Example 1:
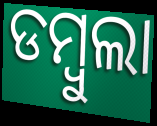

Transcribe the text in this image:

ଡମ୍ୱୁଲା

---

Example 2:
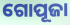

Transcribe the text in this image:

ଗୋପୂଜା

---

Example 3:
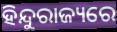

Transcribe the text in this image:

ହିନ୍ଦୁରାଜ୍ୟରେ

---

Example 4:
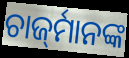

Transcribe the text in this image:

ଚାର୍ଜ୍‍ମାନଙ୍କ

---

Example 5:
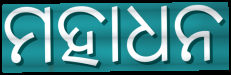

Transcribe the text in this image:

ମହାଧନ